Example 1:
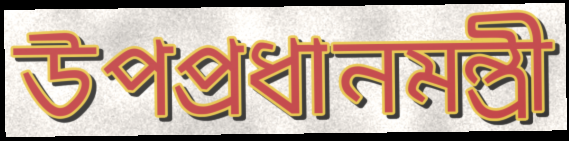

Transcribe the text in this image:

উপপ্রধানমন্ত্রী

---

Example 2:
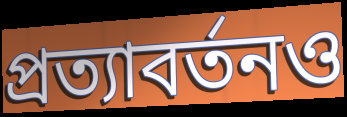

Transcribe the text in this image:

প্রত্যাবর্তনও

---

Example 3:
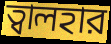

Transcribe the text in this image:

ত্বালহার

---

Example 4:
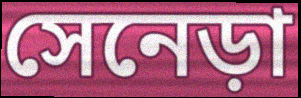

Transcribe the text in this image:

সেনেড়া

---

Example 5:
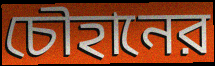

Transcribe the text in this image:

চৌহানের